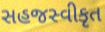
સહજસ્વીકૃત